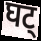
घट्